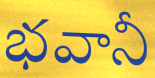
భవానీ